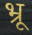
भ्रू